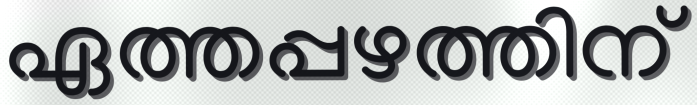
ഏത്തപ്പഴത്തിന്